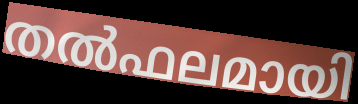
തൽഫലമായി